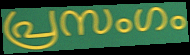
പ്രസംഗം